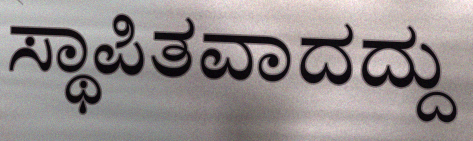
ಸ್ಥಾಪಿತವಾದದ್ದು